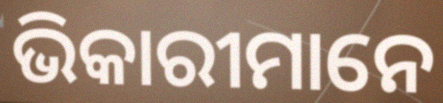
ଭିକାରୀମାନେ